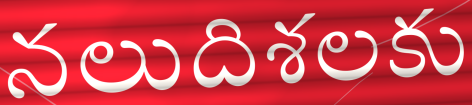
నలుదిశలకు